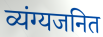
व्यंग्यजनित